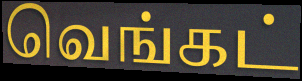
வெங்கட்